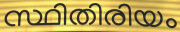
സ്ഥിതിരിയം